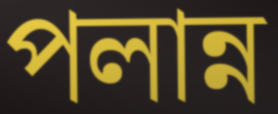
পলান্ন